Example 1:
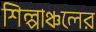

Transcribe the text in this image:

শিল্পাঞ্চলের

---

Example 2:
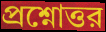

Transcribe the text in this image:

প্রশ্নোত্তর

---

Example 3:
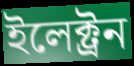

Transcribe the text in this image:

ইলেক্ট্রন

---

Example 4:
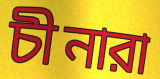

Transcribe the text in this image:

চীনারা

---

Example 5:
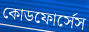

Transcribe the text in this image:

কোডফোর্সেস